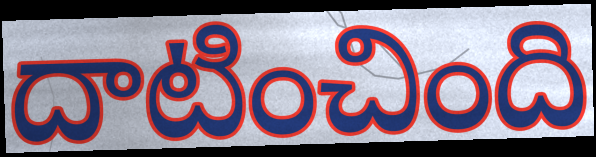
దాటించింది